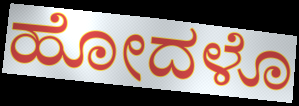
ಹೋದಳೊ